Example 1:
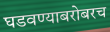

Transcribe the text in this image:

घडवण्याबरोबरच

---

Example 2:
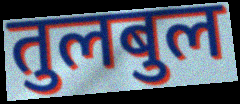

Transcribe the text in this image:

तुलबुल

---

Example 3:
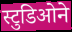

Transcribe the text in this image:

स्टुडिओने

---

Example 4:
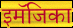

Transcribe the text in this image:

इमॅजिका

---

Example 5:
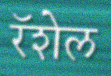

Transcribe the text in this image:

रॅशेल